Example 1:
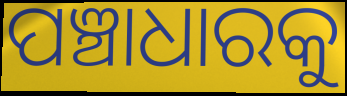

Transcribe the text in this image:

ପଞ୍ଚାଧାରକୁ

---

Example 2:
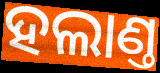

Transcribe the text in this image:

ହଲାଣ୍ତ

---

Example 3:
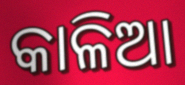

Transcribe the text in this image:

କାଳିଆ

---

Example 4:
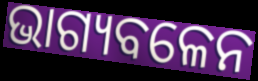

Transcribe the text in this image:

ଭାଗ୍ୟବଳେନ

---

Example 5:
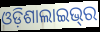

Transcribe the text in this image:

ଓଡ଼ିଶାଲାଇଭ୍‌ର